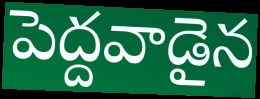
పెద్దవాడైన